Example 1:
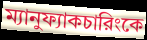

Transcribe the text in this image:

ম্যানুফ্যাকচারিংকে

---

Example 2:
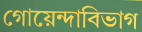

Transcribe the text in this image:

গোয়েন্দাবিভাগ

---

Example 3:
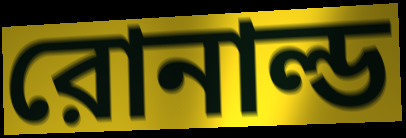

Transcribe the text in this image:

রোনাল্ড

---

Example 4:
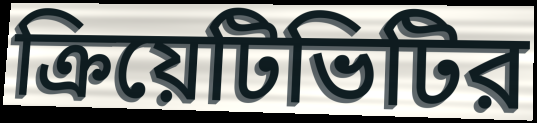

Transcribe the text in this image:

ক্রিয়েটিভিটির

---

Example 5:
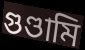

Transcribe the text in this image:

গুণ্ডামি